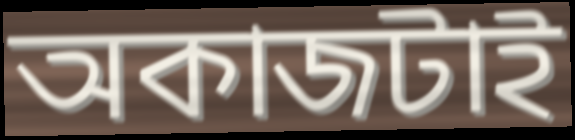
অকাজটাই